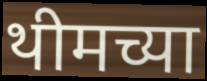
थीमच्या